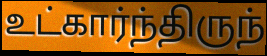
உட்கார்ந்திருந்